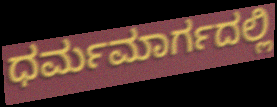
ಧರ್ಮಮಾರ್ಗದಲ್ಲಿ